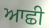
ਆਛੀ